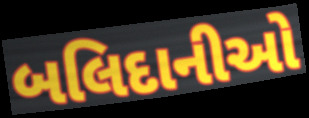
બલિદાનીઓ